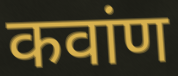
कवांण